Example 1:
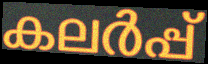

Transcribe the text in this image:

കലർപ്പ്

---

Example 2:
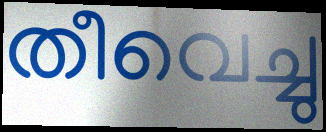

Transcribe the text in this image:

തീവെച്ചു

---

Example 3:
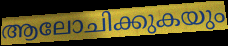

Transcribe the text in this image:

ആലോചിക്കുകയും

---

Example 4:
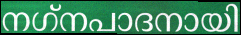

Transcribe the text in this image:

നഗ്‌നപാദനായി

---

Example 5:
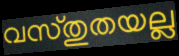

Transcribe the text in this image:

വസ്തുതയല്ല